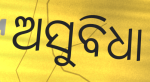
ଅସୁବିଧା